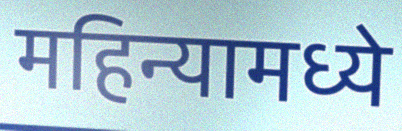
महिन्यामध्ये